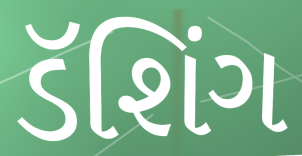
ડૅશિંગ